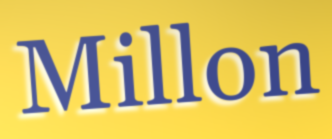
Millon